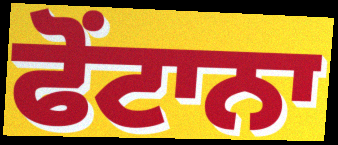
ਫੋਂਟਾਨਾ